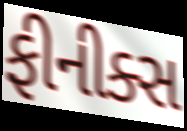
ફીનીક્સ